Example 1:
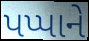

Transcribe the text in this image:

પપ્પાને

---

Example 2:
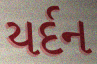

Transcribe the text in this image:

યર્દન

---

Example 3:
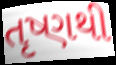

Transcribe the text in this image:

તૃષ્ણથી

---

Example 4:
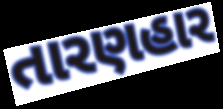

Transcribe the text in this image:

તારણહાર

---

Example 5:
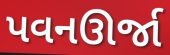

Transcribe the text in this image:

પવનઊર્જા